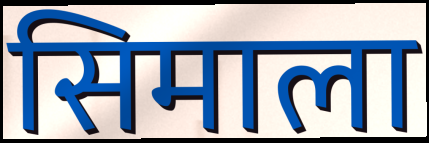
सिमाला